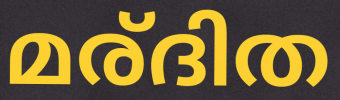
മര്ദിത